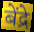
बेंद्रे